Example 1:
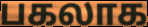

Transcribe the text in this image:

பகலாக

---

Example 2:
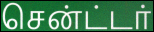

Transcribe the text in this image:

சென்ட்டர்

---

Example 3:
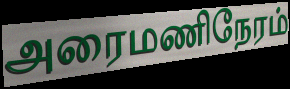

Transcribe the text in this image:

அரைமணிநேரம்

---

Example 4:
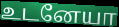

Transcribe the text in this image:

உடனேயா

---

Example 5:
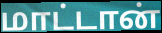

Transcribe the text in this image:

மாட்டான்